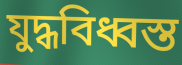
যুদ্ধবিধ্বস্ত